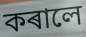
কৰালে